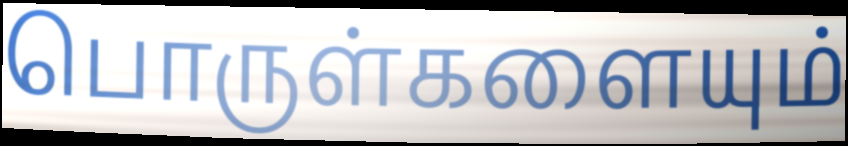
பொருள்களையும்